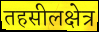
तहसीलक्षेत्र